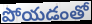
పోయడంతో